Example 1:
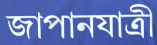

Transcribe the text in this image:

জাপানযাত্রী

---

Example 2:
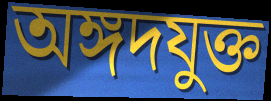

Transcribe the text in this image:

অঙ্গদযুক্ত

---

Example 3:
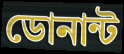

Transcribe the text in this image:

ডোনান্ট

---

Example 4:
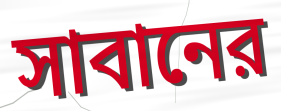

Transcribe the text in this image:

সাবানের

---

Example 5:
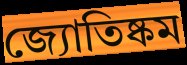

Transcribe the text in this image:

জ্যোতিষ্কম